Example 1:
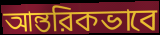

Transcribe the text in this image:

আন্তরিকভাবে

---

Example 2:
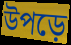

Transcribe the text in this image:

উপড়ে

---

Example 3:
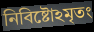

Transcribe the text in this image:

নিবিষ্টোঽমৃতং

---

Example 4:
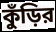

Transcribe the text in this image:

কুঁড়ির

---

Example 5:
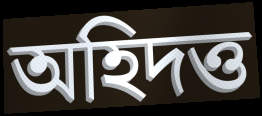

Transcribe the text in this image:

অহিদত্ত